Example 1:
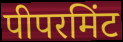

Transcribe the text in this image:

पीपरमिंट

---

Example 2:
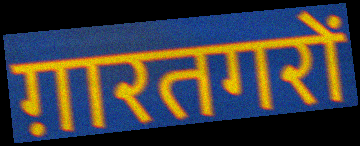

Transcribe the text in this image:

ग़ारतगरों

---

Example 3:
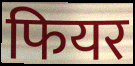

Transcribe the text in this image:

फियर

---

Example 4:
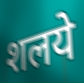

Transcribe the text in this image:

शलये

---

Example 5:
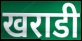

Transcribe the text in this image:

खराडी